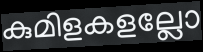
കുമിളകളല്ലോ